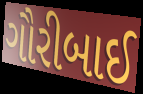
ગૌરીબાઈ